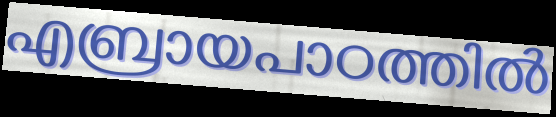
എബ്രായപാഠത്തിൽ